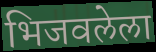
भिजवलेला